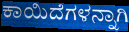
ಕಾಯಿದೆಗಳನ್ನಾಗಿ